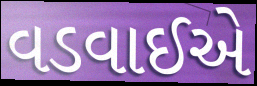
વડવાઈએ